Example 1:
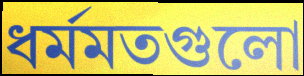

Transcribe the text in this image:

ধর্মমতগুলো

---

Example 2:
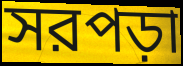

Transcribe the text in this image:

সরপড়া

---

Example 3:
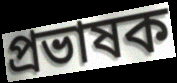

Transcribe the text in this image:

প্রভাষক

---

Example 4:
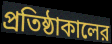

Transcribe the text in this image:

প্রতিষ্ঠাকালের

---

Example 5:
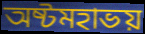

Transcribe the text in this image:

অষ্টমহাভয়